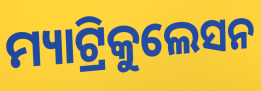
ମ୍ୟାଟ୍ରିକୁଲେସନ